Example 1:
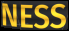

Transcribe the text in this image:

NESS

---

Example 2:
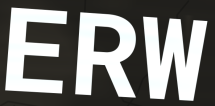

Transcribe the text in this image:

ERW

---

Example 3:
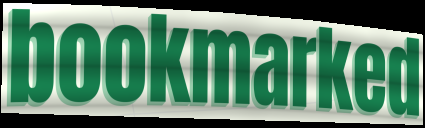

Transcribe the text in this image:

bookmarked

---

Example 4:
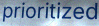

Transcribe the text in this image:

prioritized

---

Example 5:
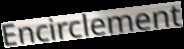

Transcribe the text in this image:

Encirclement